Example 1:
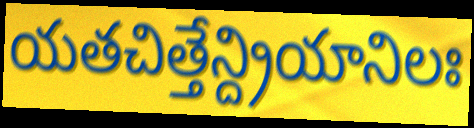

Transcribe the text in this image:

యతచిత్తేన్ద్రియానిలః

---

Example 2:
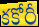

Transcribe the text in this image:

కకోరీ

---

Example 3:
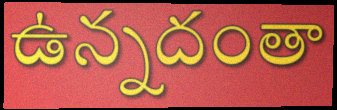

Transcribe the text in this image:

ఉన్నదంతా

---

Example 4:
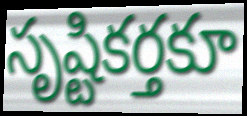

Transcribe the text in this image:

సృష్టికర్తకూ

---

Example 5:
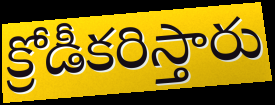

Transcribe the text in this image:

క్రోడీకరిస్తారు